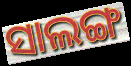
ସାଲଙ୍ଗ